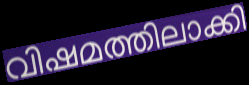
വിഷമത്തിലാക്കി